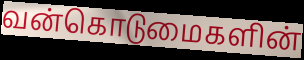
வன்கொடுமைகளின்